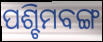
ପଶ୍ଚିମବଙ୍ଗ